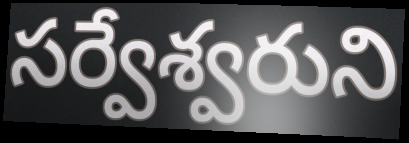
సర్వేశ్వరుని